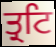
ਤ੍ਰਟਿ